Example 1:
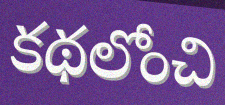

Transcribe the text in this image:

కథలోంచి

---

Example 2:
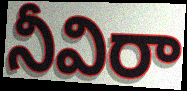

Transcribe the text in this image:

నీవిరా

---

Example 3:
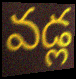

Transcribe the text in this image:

వడ్ల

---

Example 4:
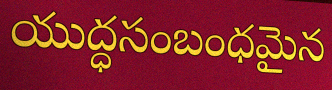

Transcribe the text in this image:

యుద్ధసంబంధమైన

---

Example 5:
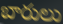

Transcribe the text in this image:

బారులు